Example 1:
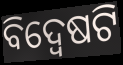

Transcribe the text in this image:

ବିଦ୍ୱେଷଟି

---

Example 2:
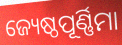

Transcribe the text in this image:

ଜ୍ୟେଷ୍ଠପୂର୍ଣ୍ଣିମା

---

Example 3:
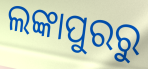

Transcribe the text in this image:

ଲଙ୍କାପୁରରୁ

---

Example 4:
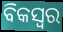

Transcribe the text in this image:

ବିକସ୍ୱର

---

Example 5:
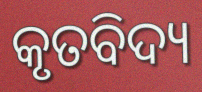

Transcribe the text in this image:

କୃତବିଦ୍ୟ